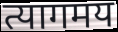
त्यागमय